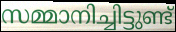
സമ്മാനിച്ചിട്ടുണ്ട്